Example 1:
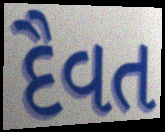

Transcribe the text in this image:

દૈવત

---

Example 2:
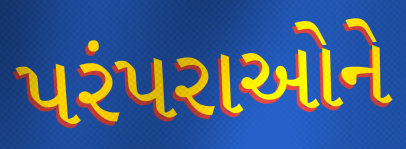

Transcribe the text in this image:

પરંપરાઓને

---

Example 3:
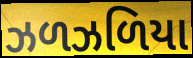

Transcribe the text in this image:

ઝળઝળિયા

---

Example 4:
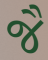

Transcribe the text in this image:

જૈ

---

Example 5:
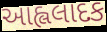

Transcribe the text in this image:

આહ્લલાદક